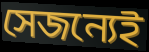
সেজন্যেই